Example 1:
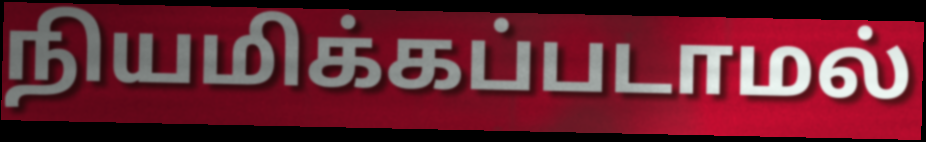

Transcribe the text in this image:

நியமிக்கப்படாமல்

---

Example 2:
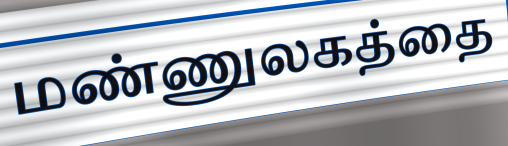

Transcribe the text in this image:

மண்ணுலகத்தை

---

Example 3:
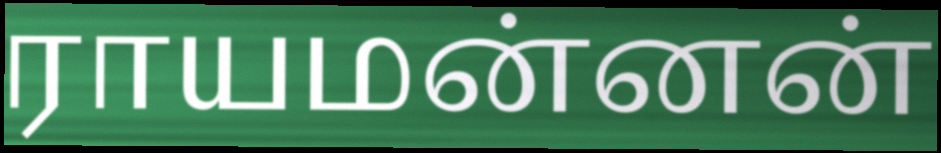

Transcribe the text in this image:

ராயமன்னன்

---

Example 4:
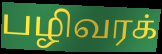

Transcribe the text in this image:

பழிவரக்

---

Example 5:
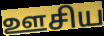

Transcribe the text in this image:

ஊசிய